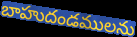
బాహుదండములను